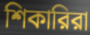
শিকারিরা